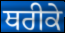
ਥਰੀਕੇ